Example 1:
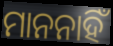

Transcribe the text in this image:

ମାନନାହିଁ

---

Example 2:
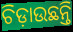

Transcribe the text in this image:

ଚିଡ଼ାଉଛନ୍ତି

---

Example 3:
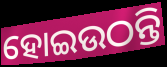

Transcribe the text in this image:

ହୋଇଉଠନ୍ତି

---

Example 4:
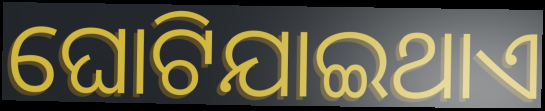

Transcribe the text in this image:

ଘୋଟିଯାଇଥାଏ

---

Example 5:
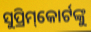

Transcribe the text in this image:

ସୁପ୍ରିମ୍‌କୋର୍ଟଙ୍କୁ